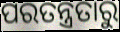
ପରତନ୍ତ୍ରତାରୁ